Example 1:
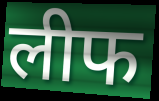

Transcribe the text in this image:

लीफ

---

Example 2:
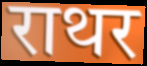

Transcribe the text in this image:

राथर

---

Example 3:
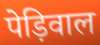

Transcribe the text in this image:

पेड़िवाल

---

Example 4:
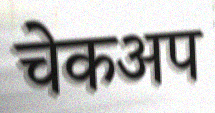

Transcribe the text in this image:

चेकअप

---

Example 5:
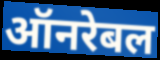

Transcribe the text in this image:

ऑनरेबल